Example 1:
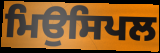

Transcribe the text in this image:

ਮਿਉਸਿਪਲ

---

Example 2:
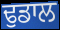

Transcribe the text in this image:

ਢੁਡਾਲ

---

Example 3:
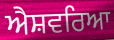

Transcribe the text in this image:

ਐਸ਼ਵਰਿਆ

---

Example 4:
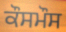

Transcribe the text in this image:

ਕੌਸਮੌਸ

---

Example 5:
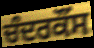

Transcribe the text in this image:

ਚੰਦਰਕੌਂਸ